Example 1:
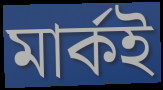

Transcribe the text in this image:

মার্কই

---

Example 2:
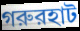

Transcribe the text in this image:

গরুরহাট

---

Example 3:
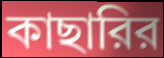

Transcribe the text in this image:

কাছারির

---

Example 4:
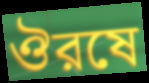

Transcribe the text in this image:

ঔরষে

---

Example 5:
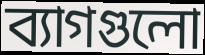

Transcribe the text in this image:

ব্যাগগুলো